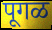
पूगळ